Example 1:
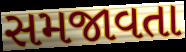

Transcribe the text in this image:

સમજાવતા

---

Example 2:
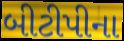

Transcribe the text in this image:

બીટીપીના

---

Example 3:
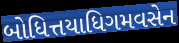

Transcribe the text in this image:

બોધિત્તયાધિગમવસેન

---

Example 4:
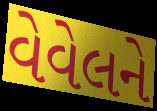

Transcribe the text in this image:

વેવેલને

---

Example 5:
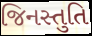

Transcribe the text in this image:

જિનસ્તુતિ